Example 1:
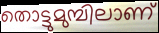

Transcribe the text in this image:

തൊട്ടുമുമ്പിലാണ്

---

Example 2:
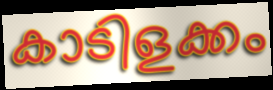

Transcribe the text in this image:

കാടിളക്കം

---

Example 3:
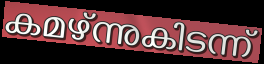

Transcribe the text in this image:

കമഴ്ന്നുകിടന്ന്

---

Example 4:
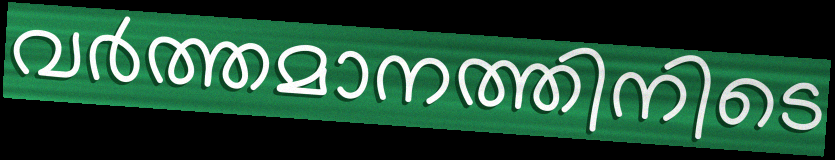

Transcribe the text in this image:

വർത്തമാനത്തിനിടെ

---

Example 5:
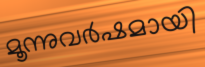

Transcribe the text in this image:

മൂന്നുവർഷമായി